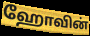
ஹோவின்